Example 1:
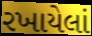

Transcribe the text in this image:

રખાયેલાં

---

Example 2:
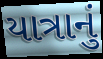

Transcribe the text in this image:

યાત્રાનું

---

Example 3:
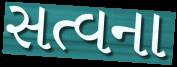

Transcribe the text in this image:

સત્વના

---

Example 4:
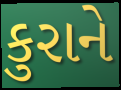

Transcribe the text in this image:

કુરાને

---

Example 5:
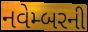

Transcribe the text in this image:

નવેમ્બરની